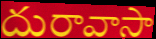
దురావాసా